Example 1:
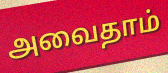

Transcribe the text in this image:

அவைதாம்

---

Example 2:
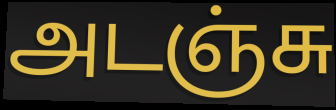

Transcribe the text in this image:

அடஞ்சு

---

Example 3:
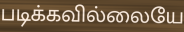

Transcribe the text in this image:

படிக்கவில்லையே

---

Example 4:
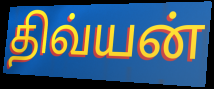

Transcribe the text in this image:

திவ்யன்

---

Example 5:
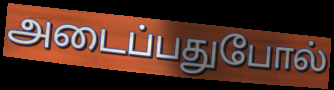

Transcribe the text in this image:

அடைப்பதுபோல்